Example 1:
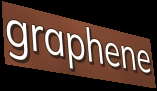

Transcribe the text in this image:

graphene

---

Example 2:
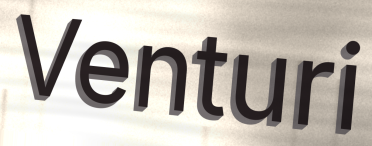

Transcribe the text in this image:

Venturi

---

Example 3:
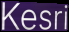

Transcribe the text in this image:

Kesri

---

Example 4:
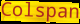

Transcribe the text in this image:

Colspan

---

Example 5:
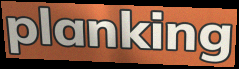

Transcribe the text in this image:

planking